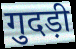
गुदड़ी